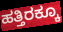
ಹತ್ತಿರಕ್ಕೂ